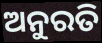
ଅନୁରତି